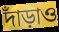
দাঁড়াও